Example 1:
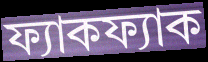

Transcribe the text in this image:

ফ্যাকফ্যাক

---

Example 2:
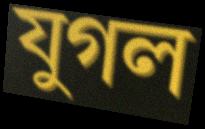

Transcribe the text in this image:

যুগল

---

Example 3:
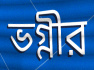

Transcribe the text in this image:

ভগ্নীর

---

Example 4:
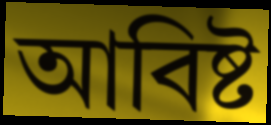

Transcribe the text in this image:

আবিষ্ট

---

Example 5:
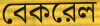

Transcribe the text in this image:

বেকরেল